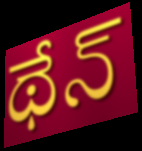
థేన్